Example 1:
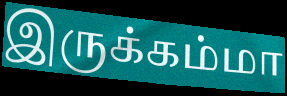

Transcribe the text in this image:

இருக்கம்மா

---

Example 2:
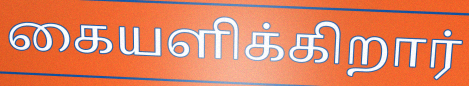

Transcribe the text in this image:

கையளிக்கிறார்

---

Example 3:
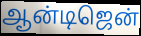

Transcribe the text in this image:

ஆன்டிஜென்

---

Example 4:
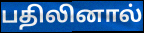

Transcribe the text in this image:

பதிலினால்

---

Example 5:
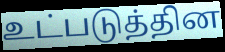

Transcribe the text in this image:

உட்படுத்தின